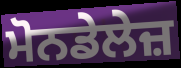
ਮੋਨਡੇਲੇਜ਼